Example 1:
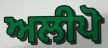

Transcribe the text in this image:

ਅਲੀਪੋ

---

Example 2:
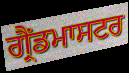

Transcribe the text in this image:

ਗ੍ਰੈਂਡਮਾਸਟਰ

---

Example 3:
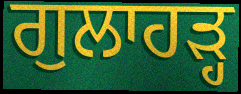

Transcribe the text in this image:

ਗੁਲਾਹੜ੍ਹ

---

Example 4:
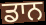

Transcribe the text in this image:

ਡਾਨ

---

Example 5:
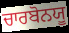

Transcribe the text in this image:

ਚਾਰਬੋਨਯੂ